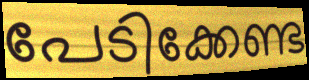
പേടിക്കേണ്ട